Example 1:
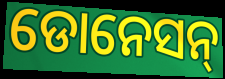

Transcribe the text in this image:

ଡୋନେସନ୍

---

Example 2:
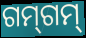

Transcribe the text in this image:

ଗମ୍‍ଗମ୍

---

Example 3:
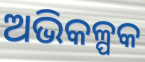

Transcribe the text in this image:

ଅଭିକଳ୍ପକ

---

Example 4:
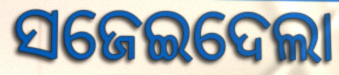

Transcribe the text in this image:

ସଜେଇଦେଲା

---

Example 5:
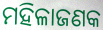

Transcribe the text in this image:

ମହିଳାଜଣକ